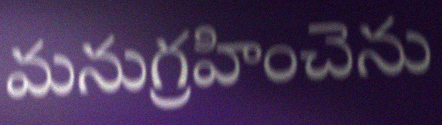
మనుగ్రహించెను